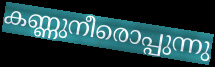
കണ്ണുനീരൊപ്പുന്നു